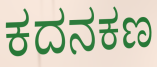
ಕದನಕಣ